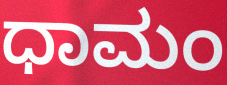
ಧಾಮಂ